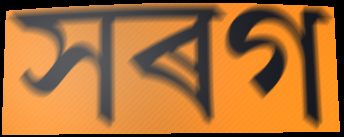
সৰগ